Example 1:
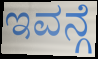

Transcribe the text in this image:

ಇವನ್ಗೆ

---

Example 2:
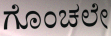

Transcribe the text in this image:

ಗೊಂಚಲೇ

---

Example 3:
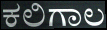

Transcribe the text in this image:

ಕಲಿಗಾಲ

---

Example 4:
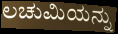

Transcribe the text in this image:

ಲಚುಮಿಯನ್ನು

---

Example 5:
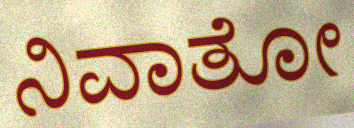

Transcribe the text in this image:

ನಿವಾತೋ